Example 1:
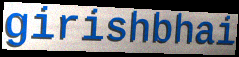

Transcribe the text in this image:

girishbhai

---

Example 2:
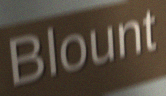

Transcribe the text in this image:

Blount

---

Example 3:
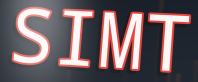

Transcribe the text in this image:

SIMT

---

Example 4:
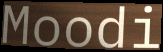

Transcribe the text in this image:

Moodi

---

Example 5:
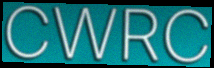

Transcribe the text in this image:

CWRC